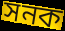
সনক